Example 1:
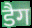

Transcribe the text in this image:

डैग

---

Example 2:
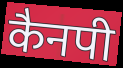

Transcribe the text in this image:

कैनपी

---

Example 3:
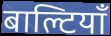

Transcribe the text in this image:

बाल्टियाँ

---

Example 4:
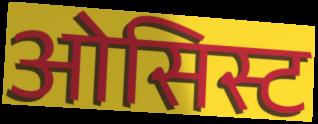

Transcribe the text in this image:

ओसिस्ट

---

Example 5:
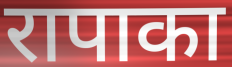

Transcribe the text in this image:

रापाका